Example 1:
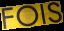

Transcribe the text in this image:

FOIS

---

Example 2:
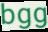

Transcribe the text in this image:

bgg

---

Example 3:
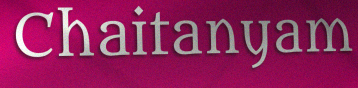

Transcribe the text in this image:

Chaitanyam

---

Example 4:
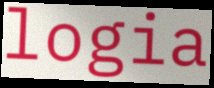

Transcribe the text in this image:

logia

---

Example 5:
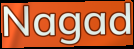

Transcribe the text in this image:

Nagad